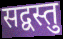
सद्वस्तु